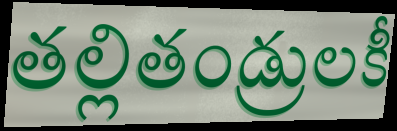
తల్లితండ్రులకీ